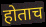
होताच